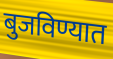
बुजविण्यात